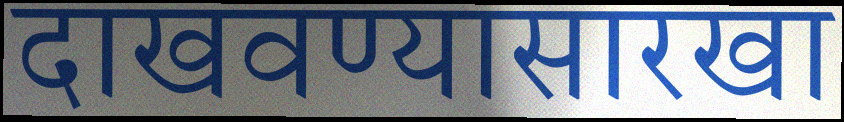
दाखवण्यासारखा